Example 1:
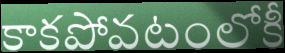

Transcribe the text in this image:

కాకపోవటంలోకీ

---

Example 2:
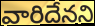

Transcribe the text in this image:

వారిదేనని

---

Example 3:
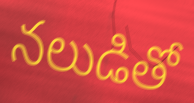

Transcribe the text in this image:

నలుడితో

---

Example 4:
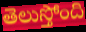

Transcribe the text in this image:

తెలుస్తోంది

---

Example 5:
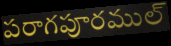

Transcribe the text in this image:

పరాగపూరముల్